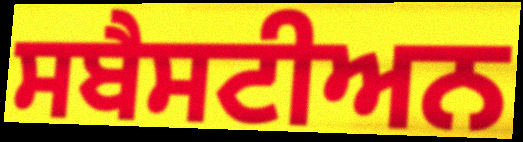
ਸਬੈਸਟੀਅਨ